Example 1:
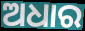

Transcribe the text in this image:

ଅଧାର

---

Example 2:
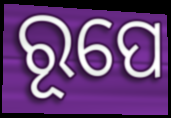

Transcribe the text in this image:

ରୂପେ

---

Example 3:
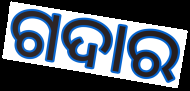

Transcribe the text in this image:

ଗଦାର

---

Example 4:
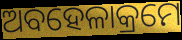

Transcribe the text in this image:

ଅବହେଳାକ୍ରମେ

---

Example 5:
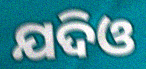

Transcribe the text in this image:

ଯଦିଓ